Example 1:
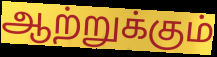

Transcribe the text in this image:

ஆற்றுக்கும்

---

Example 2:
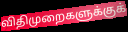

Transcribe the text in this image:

விதிமுறைகளுக்குக்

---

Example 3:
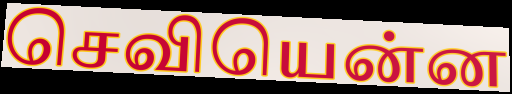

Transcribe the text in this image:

செவியென்ன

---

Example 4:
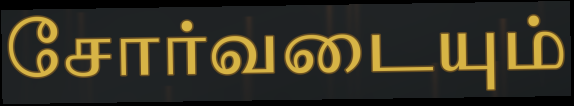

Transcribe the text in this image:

சோர்வடையும்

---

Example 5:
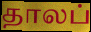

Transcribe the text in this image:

தாலப்